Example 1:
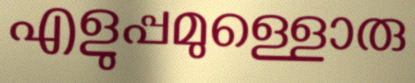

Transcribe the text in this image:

എളുപ്പമുള്ളൊരു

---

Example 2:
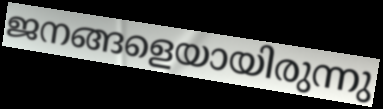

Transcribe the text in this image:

ജനങ്ങളെയായിരുന്നു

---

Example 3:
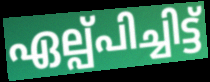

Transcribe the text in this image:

ഏല്പ്പിച്ചിട്ട്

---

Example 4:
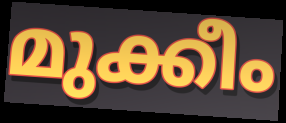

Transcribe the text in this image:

മുക്കീം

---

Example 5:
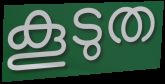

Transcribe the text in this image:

കൂടുത